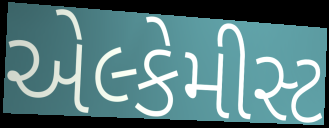
એલ્કેમીસ્ટ